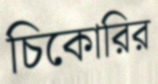
চিকোরির